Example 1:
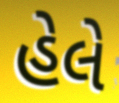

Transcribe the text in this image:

હેલે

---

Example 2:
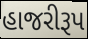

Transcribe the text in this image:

હાજરીરૂપ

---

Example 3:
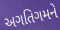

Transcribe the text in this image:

અગતિગમને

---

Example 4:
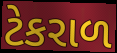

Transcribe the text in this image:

ટેકરાળ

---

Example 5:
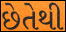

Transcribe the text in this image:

છેતેથી